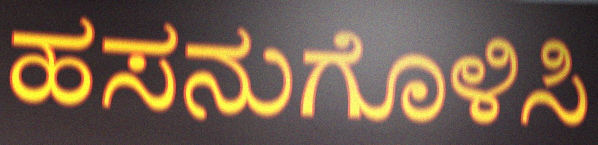
ಹಸನುಗೊಳಿಸಿ